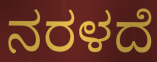
ನರಳದೆ